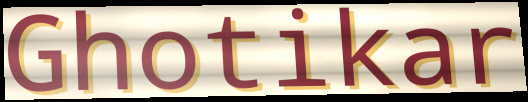
Ghotikar